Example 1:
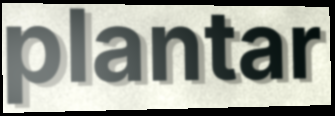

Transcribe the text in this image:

plantar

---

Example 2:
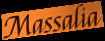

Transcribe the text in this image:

Massalia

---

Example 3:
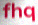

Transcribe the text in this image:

fhq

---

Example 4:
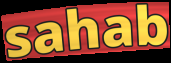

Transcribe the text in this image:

sahab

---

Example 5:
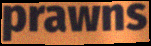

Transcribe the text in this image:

prawns